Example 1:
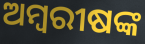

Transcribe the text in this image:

ଅମ୍ବରୀଷଙ୍କ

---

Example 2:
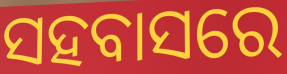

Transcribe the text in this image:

ସହବାସରେ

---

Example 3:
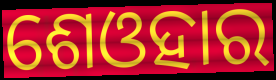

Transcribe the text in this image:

ଶେଓହାର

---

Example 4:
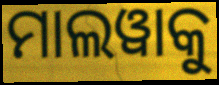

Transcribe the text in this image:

ମାଲୱାକୁ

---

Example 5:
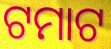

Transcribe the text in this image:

ଟମାଟ